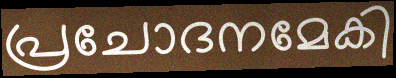
പ്രചോദനമേകി